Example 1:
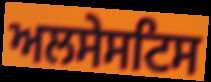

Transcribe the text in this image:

ਅਲਸੇਸਟਿਸ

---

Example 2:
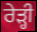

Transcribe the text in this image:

ਰੇੜ੍ਹੀ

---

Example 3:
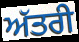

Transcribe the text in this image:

ਅੱਤਰੀ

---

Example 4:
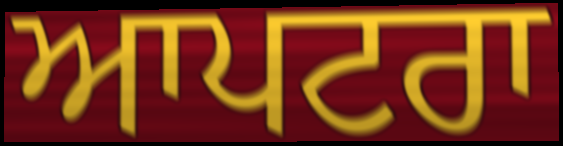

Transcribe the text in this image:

ਆਪਟਰਾ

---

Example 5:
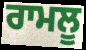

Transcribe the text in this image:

ਰਾਮਲੂ